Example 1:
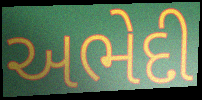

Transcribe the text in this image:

અભેદી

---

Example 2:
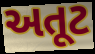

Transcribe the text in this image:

અતૂટ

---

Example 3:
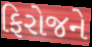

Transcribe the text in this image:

ફિરોજને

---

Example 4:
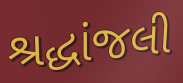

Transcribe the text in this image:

શ્રદ્ધાંજલી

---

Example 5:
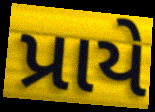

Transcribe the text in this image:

પ્રાયે